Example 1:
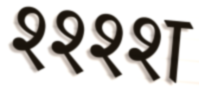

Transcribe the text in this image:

श्श्श्श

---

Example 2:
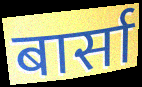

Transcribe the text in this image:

बार्सा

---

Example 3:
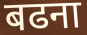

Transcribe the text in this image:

बढना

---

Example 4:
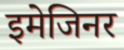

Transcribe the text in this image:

इमेजिनर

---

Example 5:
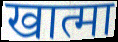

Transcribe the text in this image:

खात्मा